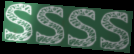
SSSS